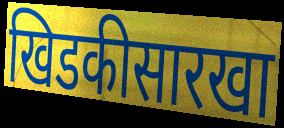
खिडकीसारखा